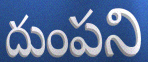
దుంపని